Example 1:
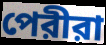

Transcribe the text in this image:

পেরীরা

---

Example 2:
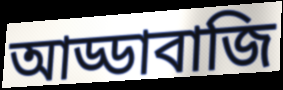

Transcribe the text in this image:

আড্ডাবাজি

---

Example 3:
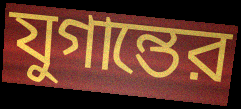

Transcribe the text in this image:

যুগান্তের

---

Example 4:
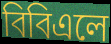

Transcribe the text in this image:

বিবিএলে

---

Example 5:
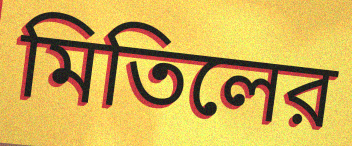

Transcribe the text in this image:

মিতিলের